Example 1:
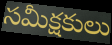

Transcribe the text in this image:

సమీక్షకులు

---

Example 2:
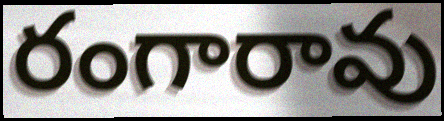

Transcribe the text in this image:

రంగారావు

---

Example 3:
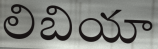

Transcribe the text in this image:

లిబియా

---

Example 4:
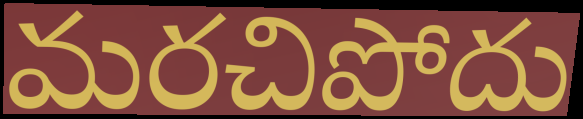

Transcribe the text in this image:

మరచిపోదు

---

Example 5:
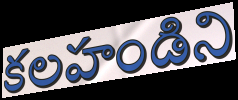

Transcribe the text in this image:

కలహండిని